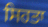
ਸਿਹਤਾ